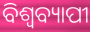
ବିଶ୍ଵବ୍ୟାପୀ